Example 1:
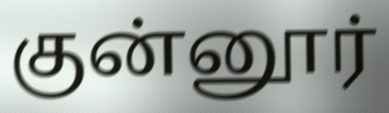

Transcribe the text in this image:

குன்னூர்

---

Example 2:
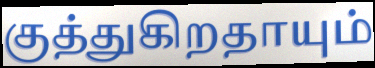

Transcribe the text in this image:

குத்துகிறதாயும்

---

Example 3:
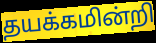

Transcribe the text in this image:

தயக்கமின்றி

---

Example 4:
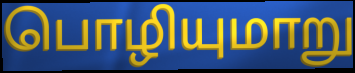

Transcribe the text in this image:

பொழியுமாறு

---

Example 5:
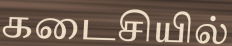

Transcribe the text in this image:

கடைசியில்